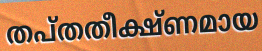
തപ്തതീക്ഷ്ണമായ